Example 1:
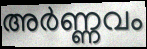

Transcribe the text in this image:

അർണ്ണവം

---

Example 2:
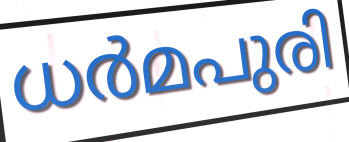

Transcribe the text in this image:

ധർമപുരി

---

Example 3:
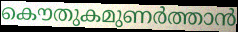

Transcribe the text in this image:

കൌതുകമുണർത്താൻ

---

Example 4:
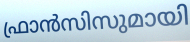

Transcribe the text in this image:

ഫ്രാൻസിസുമായി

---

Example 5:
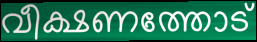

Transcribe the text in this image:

വീക്ഷണത്തോട്